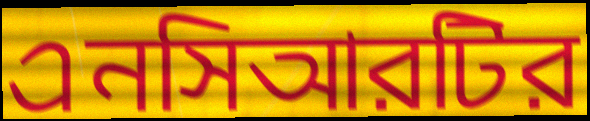
এনসিআরটির